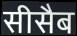
सीसैब